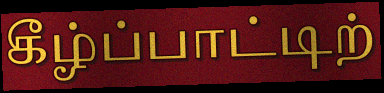
கீழ்ப்பாட்டிற்